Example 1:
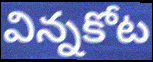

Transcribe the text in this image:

విన్నకోట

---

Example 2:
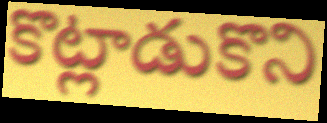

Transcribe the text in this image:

కొట్లాడుకొని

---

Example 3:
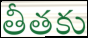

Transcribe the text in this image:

తీతకు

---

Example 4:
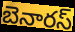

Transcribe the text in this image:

బెనారస్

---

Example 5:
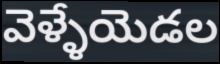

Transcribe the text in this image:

వెళ్ళేయెడల